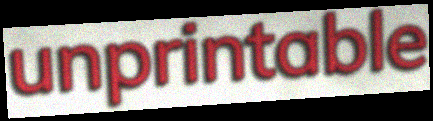
unprintable